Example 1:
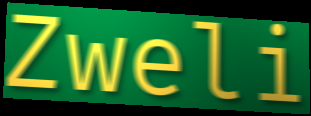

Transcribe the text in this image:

Zweli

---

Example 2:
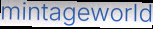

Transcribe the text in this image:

mintageworld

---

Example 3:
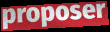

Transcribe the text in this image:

proposer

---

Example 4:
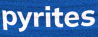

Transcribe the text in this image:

pyrites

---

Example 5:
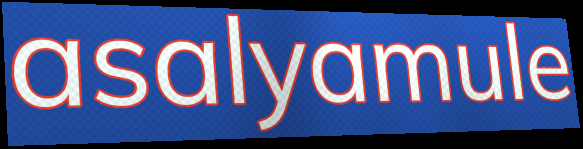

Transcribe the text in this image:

asalyamule